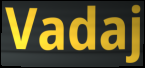
Vadaj